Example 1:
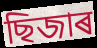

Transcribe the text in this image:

ছিজাৰ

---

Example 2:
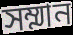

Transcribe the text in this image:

সম্মান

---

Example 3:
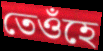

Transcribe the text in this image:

তেওঁহে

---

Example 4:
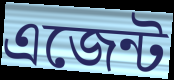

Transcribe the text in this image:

এজেন্ট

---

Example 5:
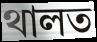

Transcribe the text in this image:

থালত